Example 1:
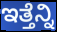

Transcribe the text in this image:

ಇತ್ತೆನ್ನಿ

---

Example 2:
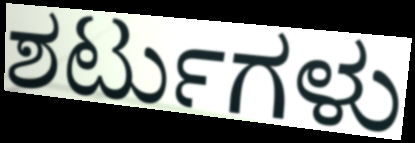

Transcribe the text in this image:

ಶರ್ಟುಗಳು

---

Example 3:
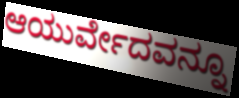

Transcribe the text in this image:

ಆಯುರ್ವೇದವನ್ನೂ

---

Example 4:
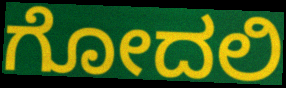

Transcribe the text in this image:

ಗೋದಲಿ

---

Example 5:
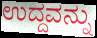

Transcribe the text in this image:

ಉದ್ದವನ್ನು